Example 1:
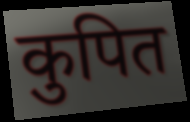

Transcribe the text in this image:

कुपित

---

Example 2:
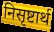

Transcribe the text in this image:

निसृष्टार्थ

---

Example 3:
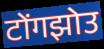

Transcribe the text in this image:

टोंगझोउ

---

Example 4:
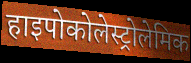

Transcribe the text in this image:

हाइपोकोलेस्ट्रोलेमिक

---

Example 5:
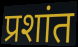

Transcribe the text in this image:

प्रशांत